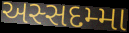
અસ્સદમ્મા